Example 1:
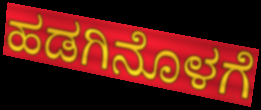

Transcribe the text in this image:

ಹಡಗಿನೊಳಗೆ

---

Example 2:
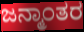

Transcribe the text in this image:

ಜನ್ಮಾಂತರ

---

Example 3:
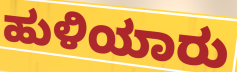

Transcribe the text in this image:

ಹುಳಿಯಾರು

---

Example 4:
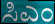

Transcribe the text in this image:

ಸಿಎಂ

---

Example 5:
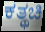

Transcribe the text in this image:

ಕತ್ಥಚಿ